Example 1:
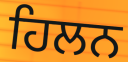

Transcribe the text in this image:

ਹਿਲਨ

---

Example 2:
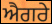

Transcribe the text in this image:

ਐਗਰੇ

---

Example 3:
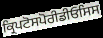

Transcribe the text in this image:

ਕ੍ਰਿਪਟੋਸਪੋਰੀਡੀਓਸਿਸ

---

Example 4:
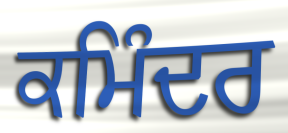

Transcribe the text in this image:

ਕਮਿੰਦਰ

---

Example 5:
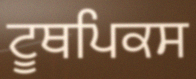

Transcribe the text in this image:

ਟੂਥਪਿਕਸ